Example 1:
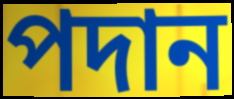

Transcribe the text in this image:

পদান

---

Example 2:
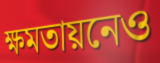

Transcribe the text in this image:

ক্ষমতায়নেও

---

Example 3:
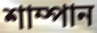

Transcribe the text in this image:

শাম্পান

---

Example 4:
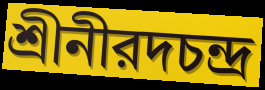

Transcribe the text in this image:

শ্রীনীরদচন্দ্র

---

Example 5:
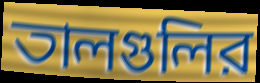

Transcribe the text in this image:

তালগুলির